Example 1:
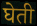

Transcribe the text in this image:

घेती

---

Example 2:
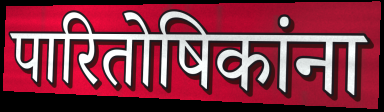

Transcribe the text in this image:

पारितोषिकांना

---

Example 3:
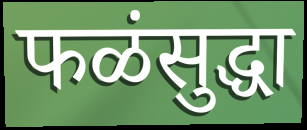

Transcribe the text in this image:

फळंसुद्धा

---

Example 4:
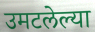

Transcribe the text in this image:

उमटलेल्या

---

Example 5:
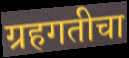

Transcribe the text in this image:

ग्रहगतीचा